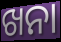
ଖନା